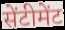
सेंटीमेंट